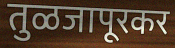
तुळजापूरकर